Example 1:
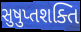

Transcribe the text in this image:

સુષુપ્તશક્તિ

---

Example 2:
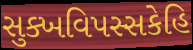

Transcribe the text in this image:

સુક્ખવિપસ્સકેહિ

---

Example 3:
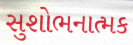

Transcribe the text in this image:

સુશોભનાત્મક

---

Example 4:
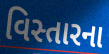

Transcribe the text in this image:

વિસ્તારના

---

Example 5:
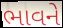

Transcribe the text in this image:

ભાવને